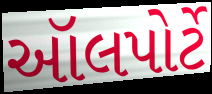
ઑલપોર્ટે